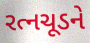
રત્નચૂડને